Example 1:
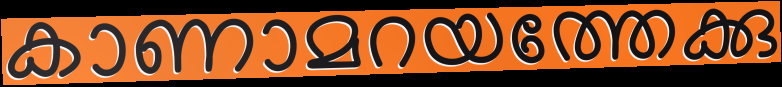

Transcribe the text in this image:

കാണാമറയത്തേക്കു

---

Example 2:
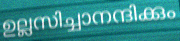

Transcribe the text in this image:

ഉല്ലസിച്ചാനന്ദിക്കും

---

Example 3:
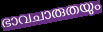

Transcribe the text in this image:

ഭാവചാരുതയും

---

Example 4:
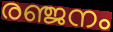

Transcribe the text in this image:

രഞ്ജനം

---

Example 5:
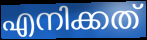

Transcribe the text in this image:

എനിക്കത്